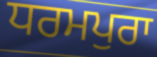
ਧਰਮਪੁਰਾ